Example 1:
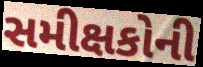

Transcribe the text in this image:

સમીક્ષકોની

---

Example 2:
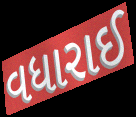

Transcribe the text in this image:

વધારાઈ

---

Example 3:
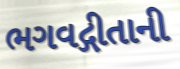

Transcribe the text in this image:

ભગવદ્ગીતાની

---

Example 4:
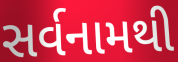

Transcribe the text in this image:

સર્વનામથી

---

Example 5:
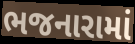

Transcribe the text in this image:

ભજનારામાં